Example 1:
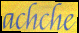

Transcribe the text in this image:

achche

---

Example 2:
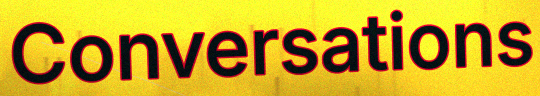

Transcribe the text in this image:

Conversations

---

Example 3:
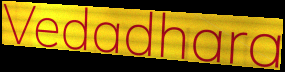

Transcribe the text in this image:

Vedadhara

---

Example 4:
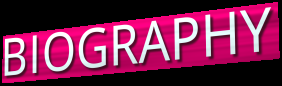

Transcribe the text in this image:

BIOGRAPHY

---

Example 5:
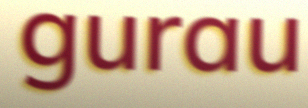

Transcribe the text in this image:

gurau